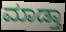
ಮಾಡ್ತಾ